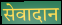
सेवादान